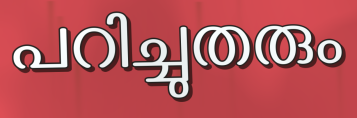
പറിച്ചുതരും